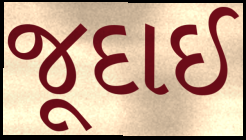
જૂદાઈ